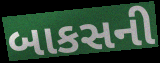
બાકસની